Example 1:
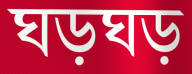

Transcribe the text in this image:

ঘড়ঘড়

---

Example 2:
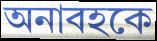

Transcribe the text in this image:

অনাবহকে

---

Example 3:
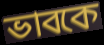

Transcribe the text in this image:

ভাবকে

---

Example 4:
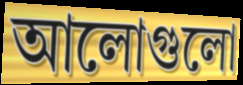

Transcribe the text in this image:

আলোগুলো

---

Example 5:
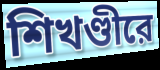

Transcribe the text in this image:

শিখণ্ডীরে